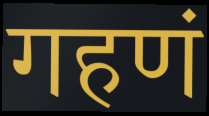
गहणं